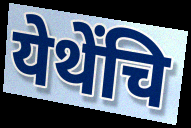
येथेंचि